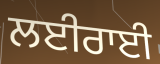
ਲਈਰਾਈ